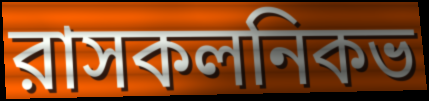
রাসকলনিকভ